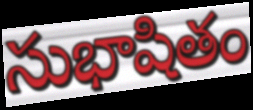
సుభాషితం